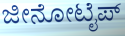
ಜೀನೋಟೈಪ್